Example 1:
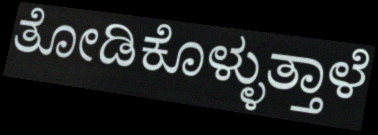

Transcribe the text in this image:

ತೋಡಿಕೊಳ್ಳುತ್ತಾಳೆ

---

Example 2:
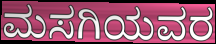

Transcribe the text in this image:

ಮಸಗಿಯವರ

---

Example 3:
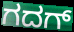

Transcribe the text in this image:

ಗದಗ್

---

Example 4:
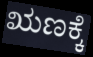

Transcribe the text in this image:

ಋಣಕ್ಕೆ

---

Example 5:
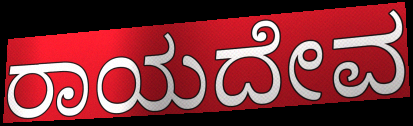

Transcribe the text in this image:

ರಾಯದೇವ